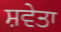
ਸ਼ਵੇਤਾ